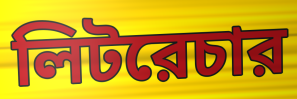
লিটরেচার